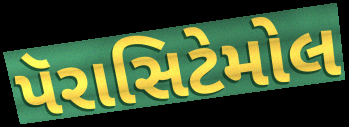
પૅરાસિટેમોલ